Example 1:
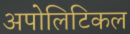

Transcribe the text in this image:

अपोलिटिकल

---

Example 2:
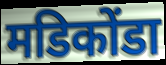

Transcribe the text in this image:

मडिकोंडा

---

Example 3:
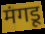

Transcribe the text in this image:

मंगडू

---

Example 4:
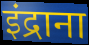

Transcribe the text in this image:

इंद्राना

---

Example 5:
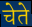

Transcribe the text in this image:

चेते